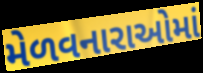
મેળવનારાઓમાં